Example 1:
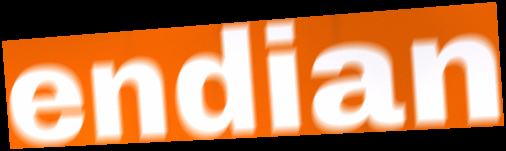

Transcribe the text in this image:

endian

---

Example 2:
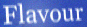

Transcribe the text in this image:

Flavour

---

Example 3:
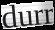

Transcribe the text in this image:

durr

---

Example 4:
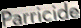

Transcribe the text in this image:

Parricide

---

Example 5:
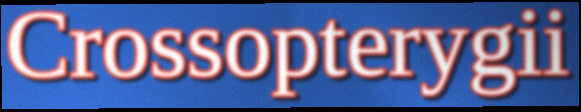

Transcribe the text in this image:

Crossopterygii